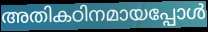
അതികഠിനമായപ്പോൾ